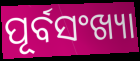
ପୂର୍ବସଂଖ୍ୟା